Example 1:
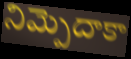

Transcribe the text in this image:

నిమ్పెదాకా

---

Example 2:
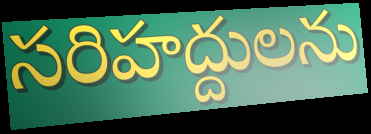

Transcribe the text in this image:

సరిహద్దులను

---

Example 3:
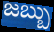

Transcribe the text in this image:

జబ్బు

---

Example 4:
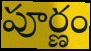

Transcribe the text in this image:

పూర్ణం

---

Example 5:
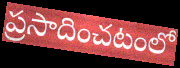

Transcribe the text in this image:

ప్రసాదించటంలో